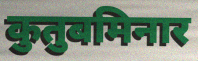
कुतुबमिनार